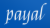
payal